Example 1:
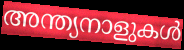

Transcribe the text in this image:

അന്ത്യനാളുകൾ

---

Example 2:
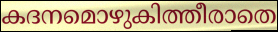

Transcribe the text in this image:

കദനമൊഴുകിത്തീരാതെ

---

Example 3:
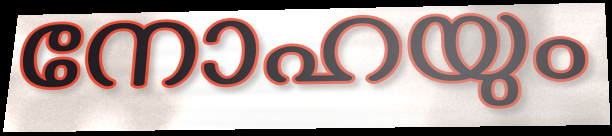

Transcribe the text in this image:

നോഹയും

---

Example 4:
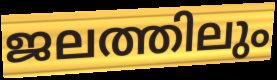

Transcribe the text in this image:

ജലത്തിലും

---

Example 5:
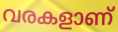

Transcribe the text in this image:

വരകളാണ്